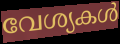
വേശ്യകൾ